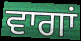
ਵਾਗਾਂ